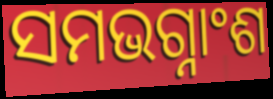
ସମଭଗ୍ନାଂଶ